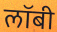
लॉबी